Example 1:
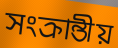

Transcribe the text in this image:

সংক্ৰান্তীয়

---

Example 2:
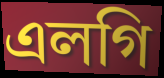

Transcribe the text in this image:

এলগি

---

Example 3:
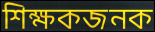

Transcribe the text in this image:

শিক্ষকজনক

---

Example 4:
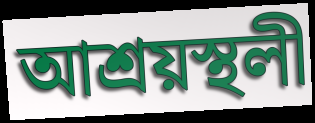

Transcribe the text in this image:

আশ্ৰয়স্থলী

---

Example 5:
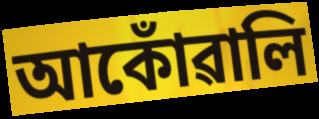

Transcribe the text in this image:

আকোঁৱালি